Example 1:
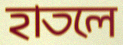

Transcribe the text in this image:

হাতলে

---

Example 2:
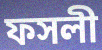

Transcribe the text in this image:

ফসলী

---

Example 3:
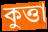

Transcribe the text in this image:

কুত্তা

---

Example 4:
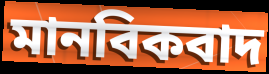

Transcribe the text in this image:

মানবিকবাদ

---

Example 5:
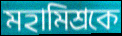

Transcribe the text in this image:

মহামিশ্রকে